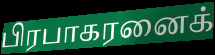
பிரபாகரனைக்